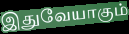
இதுவேயாகும்